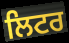
ਲਿਟਰ